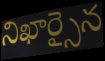
నిఖార్సైన